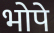
भोपे